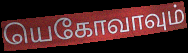
யெகோவாவும்